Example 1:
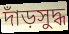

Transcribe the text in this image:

দাঁড়সুদ্ধ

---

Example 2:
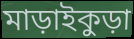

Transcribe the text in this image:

মাড়াইকুড়া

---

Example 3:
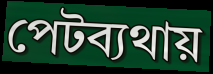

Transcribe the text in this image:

পেটব্যথায়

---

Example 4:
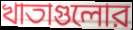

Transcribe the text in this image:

খাতাগুলোর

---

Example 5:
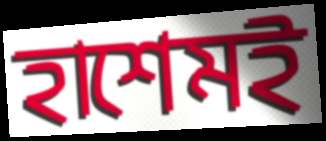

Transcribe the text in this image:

হাশেমই